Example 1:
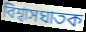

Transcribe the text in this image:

বিশ্বাসঘাতক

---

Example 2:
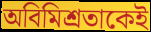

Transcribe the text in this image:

অবিমিশ্রতাকেই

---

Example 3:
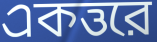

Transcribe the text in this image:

একত্তরে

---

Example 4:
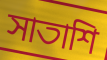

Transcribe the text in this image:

সাতাশি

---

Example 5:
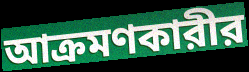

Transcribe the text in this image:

আক্রমণকারীর